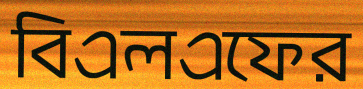
বিএলএফের